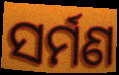
ସର୍ମଣ